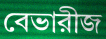
বেভারীজ